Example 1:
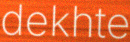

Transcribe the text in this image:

dekhte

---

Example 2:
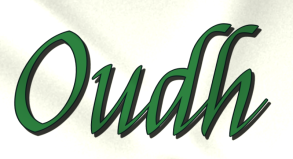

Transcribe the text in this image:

Oudh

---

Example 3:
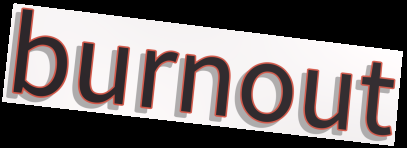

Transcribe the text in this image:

burnout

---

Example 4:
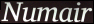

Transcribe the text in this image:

Numair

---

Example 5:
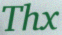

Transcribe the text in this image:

Thx